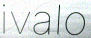
ivalo